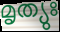
മൃത്യുഃ